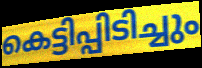
കെട്ടിപ്പിടിച്ചും